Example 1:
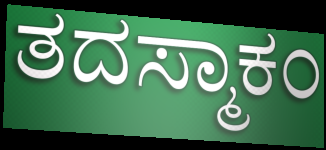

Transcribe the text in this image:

ತದಸ್ಮಾಕಂ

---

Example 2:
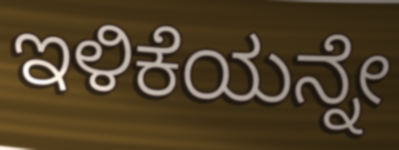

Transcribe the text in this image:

ಇಳಿಕೆಯನ್ನೇ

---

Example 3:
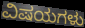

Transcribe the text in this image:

ವಿಷಯಗಳು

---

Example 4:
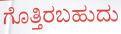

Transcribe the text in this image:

ಗೊತ್ತಿರಬಹುದು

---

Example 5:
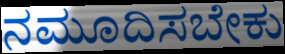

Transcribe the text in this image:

ನಮೂದಿಸಬೇಕು